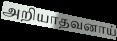
அறியாதவனாய்